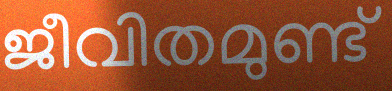
ജീവിതമുണ്ട്